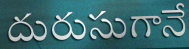
దురుసుగానే